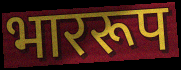
भाररूप